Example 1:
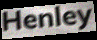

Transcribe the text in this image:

Henley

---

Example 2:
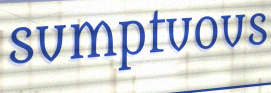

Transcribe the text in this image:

sumptuous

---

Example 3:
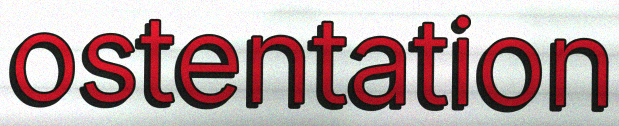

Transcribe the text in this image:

ostentation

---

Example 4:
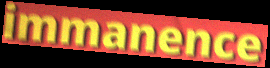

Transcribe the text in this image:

immanence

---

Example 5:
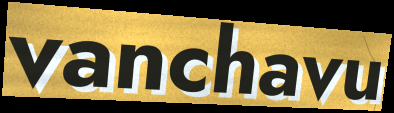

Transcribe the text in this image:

vanchavu